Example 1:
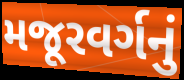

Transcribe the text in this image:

મજૂરવર્ગનું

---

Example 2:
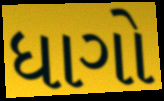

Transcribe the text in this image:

ધાગો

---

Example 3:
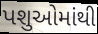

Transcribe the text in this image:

પશુઓમાંથી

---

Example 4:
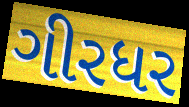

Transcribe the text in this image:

ગીરધર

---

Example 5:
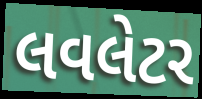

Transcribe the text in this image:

લવલેટર